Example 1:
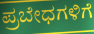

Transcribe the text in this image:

ಪ್ರಬೇಧಗಳಿಗೆ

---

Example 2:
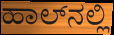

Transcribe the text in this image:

ಹಾಲ್‌ನಲ್ಲಿ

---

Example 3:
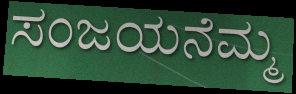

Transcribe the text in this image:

ಸಂಜಯನೆಮ್ಮ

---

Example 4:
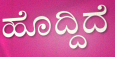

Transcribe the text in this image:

ಹೊದ್ದಿದೆ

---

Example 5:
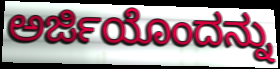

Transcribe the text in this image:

ಅರ್ಜಿಯೊಂದನ್ನು